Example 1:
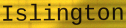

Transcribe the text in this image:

Islington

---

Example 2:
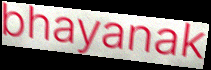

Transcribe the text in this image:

bhayanak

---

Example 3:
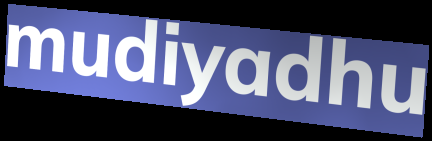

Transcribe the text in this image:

mudiyadhu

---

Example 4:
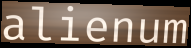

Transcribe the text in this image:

alienum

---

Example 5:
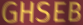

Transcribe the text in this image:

GHSEB